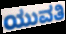
ಯುವತಿ